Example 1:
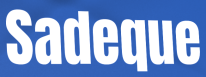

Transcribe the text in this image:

Sadeque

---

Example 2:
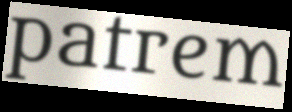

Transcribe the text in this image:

patrem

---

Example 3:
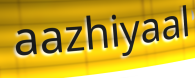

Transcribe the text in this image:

aazhiyaal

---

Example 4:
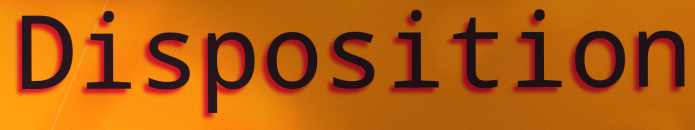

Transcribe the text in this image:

Disposition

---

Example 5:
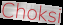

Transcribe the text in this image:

Choksi